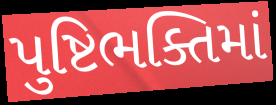
પુષ્ટિભક્તિમાં